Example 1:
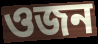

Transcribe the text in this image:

ওজন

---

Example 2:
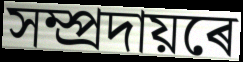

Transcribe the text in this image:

সম্প্ৰদায়ৰে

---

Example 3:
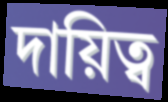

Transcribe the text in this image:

দায়িত্ব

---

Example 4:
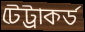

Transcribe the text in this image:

টেট্ৰাকৰ্ড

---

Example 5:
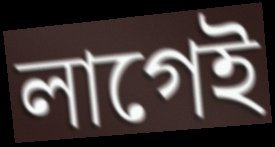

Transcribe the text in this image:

লাগেই